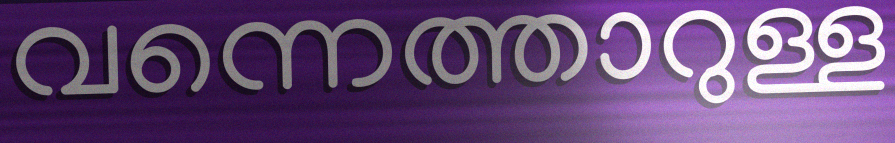
വന്നെത്താറുള്ള